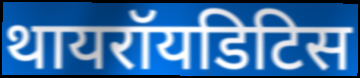
थायरॉयडिटिस